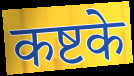
कष्टके